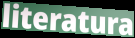
literatura